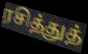
ரசித்துத்